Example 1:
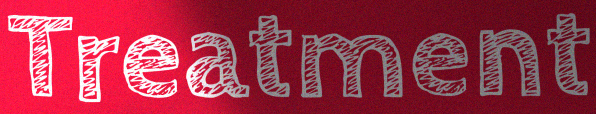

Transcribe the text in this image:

Treatment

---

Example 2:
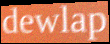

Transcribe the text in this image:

dewlap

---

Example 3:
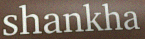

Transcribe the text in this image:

shankha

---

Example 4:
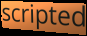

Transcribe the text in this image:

scripted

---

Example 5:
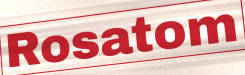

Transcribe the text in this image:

Rosatom